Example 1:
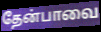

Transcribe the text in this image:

தேன்பாவை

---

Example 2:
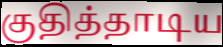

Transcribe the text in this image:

குதித்தாடிய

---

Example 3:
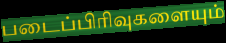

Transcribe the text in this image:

படைப்பிரிவுகளையும்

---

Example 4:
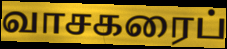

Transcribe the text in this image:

வாசகரைப்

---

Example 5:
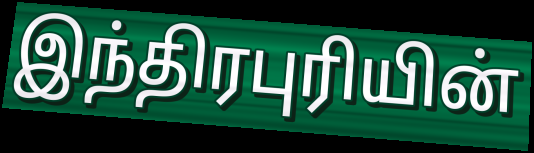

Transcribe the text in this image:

இந்திரபுரியின்